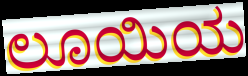
ಲೂಯಿಯ